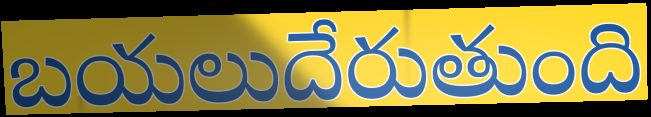
బయలుదేరుతుంది